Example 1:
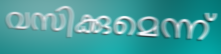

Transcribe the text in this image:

വസിക്കുമെന്ന്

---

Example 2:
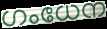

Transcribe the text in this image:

ഗംധേന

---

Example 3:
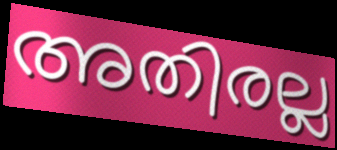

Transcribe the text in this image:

അതിരല്ല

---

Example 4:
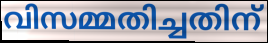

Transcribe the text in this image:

വിസമ്മതിച്ചതിന്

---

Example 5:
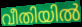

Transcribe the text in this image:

വീതിയിൽ